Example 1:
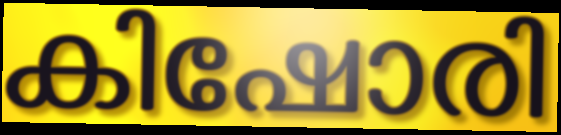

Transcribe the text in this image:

കിഷോരി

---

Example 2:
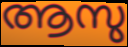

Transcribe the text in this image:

ആസു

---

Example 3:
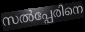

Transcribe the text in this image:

സൽപ്പേരിനെ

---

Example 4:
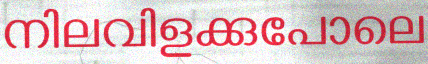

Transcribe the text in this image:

നിലവിളക്കുപോലെ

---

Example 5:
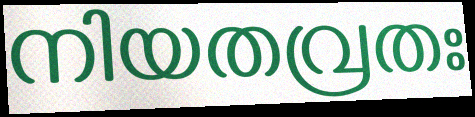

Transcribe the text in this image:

നിയതവ്രതഃ